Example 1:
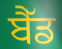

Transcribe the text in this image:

ਬੈੱਡ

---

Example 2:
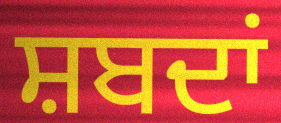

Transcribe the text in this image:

ਸ਼ਬਦਾਂ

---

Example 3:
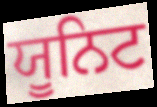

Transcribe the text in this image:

ਯੂਨਿਟ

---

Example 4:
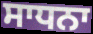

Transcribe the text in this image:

ਸਾਧਨਾ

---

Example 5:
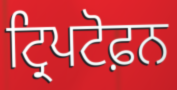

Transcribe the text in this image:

ਟ੍ਰਿਪਟੋਫ਼ਨ